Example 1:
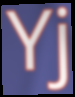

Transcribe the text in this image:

Yj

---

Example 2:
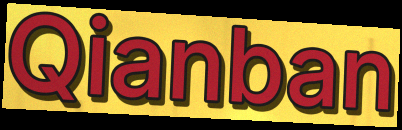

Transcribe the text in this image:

Qianban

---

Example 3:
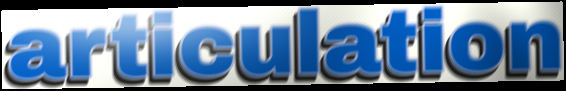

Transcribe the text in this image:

articulation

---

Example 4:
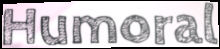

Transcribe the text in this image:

Humoral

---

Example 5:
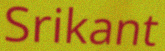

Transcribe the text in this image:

Srikant